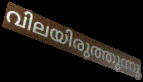
വിലയിരുത്തുന്നു